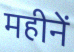
महीनें